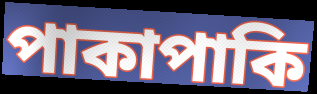
পাকাপাকি